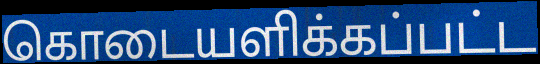
கொடையளிக்கப்பட்ட